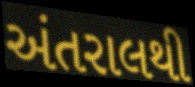
અંતરાલથી